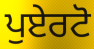
ਪੁਏਰਟੋ